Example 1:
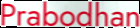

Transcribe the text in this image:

Prabodhan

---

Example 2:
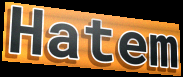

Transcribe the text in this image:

Hatem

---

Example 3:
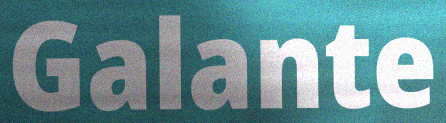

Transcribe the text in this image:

Galante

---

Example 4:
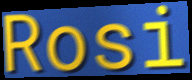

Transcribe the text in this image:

Rosi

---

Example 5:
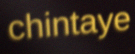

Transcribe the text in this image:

chintaye